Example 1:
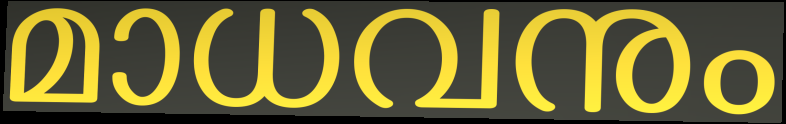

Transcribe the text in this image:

മാധവനും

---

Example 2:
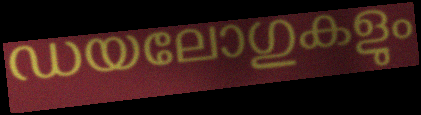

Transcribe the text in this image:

ഡയലോഗുകളും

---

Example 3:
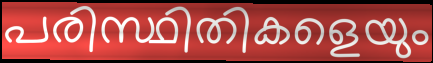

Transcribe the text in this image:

പരിസ്ഥിതികളെയും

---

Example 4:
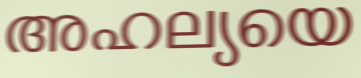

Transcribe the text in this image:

അഹല്യയെ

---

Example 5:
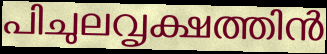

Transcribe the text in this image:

പിചുലവൃക്ഷത്തിൻ